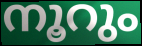
നൂറും